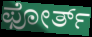
ಫೋರ್ತ್